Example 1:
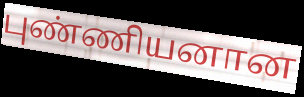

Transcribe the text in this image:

புண்ணியனான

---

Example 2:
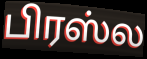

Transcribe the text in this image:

பிரஸ்ல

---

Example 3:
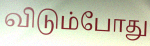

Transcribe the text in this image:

விடும்போது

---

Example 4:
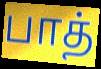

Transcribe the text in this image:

பாத்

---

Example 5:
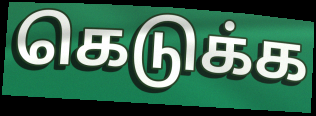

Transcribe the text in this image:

கெடுக்க